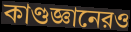
কাণ্ডজ্ঞানেরও